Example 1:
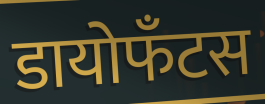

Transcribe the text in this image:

डायोफँटस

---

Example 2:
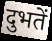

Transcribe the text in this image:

दुभतें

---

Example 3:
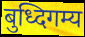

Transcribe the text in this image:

बुध्दिगम्य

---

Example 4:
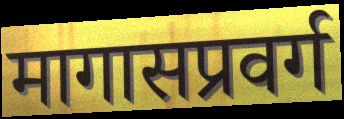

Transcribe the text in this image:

मागासप्रवर्ग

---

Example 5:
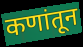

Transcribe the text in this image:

कणांतून